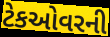
ટેકઓવરની